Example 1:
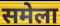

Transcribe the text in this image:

समेला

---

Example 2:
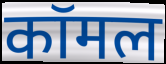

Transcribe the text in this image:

कॉमल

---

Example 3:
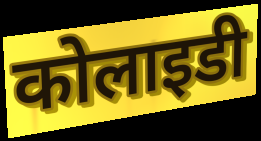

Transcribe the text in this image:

कोलाइडी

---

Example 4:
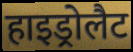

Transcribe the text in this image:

हाइड्रोलैट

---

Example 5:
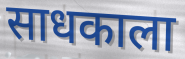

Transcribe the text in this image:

साधकाला